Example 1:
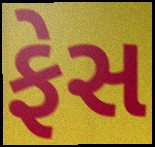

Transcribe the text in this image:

ફેસ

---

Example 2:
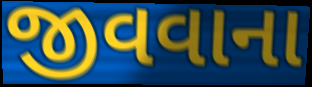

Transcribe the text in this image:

જીવવાના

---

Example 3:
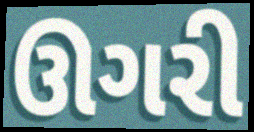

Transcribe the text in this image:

ઊગરી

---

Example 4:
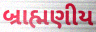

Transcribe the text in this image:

બ્રાહ્મણીય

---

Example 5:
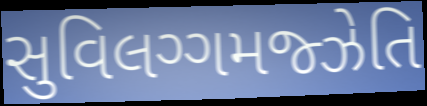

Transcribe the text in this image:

સુવિલગ્ગમજ્ઝેતિ